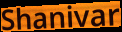
Shanivar